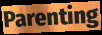
Parenting